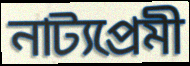
নাট্যপ্ৰেমী